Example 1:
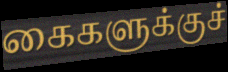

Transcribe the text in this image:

கைகளுக்குச்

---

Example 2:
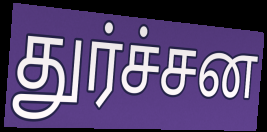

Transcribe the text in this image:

துர்ச்சன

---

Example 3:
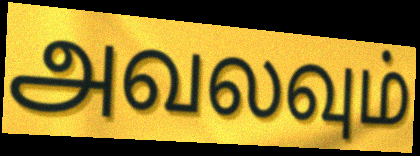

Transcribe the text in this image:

அவலவும்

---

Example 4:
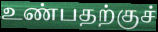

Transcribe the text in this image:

உண்பதற்குச்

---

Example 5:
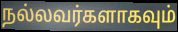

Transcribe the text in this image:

நல்லவர்களாகவும்